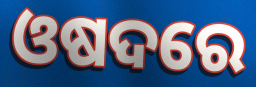
ଓଷଦରେ